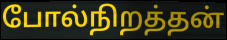
போல்நிறத்தன்